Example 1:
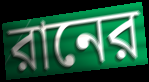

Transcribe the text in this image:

রানের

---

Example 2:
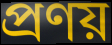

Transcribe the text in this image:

প্রণয়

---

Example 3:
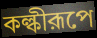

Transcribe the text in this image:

কল্কীরূপে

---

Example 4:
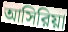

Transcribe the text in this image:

আসিরিয়া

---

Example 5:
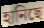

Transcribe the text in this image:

হানিছে